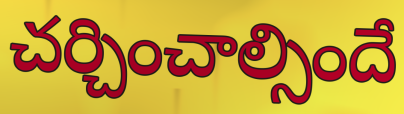
చర్చించాల్సిందే